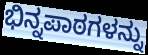
ಭಿನ್ನಪಾಠಗಳನ್ನು